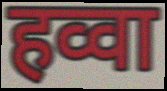
हव्वा